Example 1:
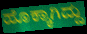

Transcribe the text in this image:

ಹೊಕ್ಕಾಗಿದ್ದು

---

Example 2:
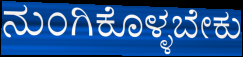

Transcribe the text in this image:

ನುಂಗಿಕೊಳ್ಳಬೇಕು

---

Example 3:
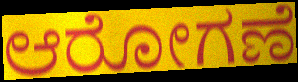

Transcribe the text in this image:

ಆರೋಗಣೆ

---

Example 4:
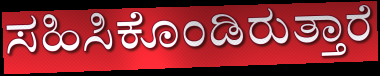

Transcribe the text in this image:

ಸಹಿಸಿಕೊಂಡಿರುತ್ತಾರೆ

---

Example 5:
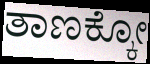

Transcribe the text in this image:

ತಾಣಕ್ಕೋ